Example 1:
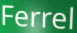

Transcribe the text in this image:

Ferrel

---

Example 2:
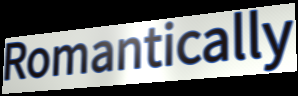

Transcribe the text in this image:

Romantically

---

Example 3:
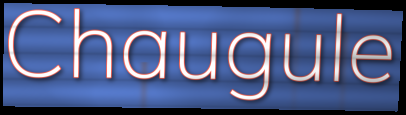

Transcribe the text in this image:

Chaugule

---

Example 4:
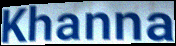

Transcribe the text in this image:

Khanna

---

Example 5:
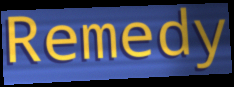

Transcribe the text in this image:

Remedy